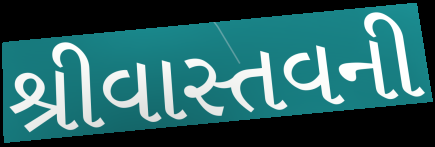
શ્રીવાસ્તવની